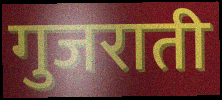
गुजराती